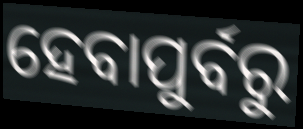
ହେବାପୁର୍ବରୁ